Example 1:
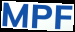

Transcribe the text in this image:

MPF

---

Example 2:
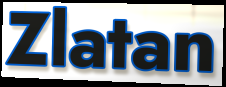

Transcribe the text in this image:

Zlatan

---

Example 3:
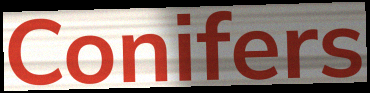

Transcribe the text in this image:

Conifers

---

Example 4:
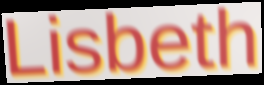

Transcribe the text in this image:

Lisbeth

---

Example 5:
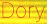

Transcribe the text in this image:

Dory